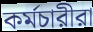
কর্মচারীরা